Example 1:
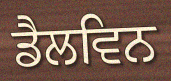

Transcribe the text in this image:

ਡੈਲਵਿਨ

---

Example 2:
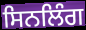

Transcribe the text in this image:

ਸਿਨਲਿੰਗ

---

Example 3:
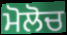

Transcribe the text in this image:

ਮੋਲੋਚ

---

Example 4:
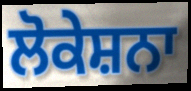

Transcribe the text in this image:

ਲੋਕੇਸ਼ਨਾ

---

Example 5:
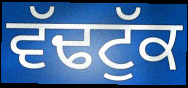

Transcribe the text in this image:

ਵੱਢਟੁੱਕ